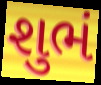
શુભં